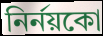
নিৰ্নয়কো